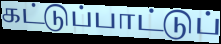
கட்டுப்பாட்டுப்